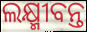
ଲକ୍ଷ୍ମୀବନ୍ତ